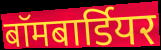
बॉमबार्डियर